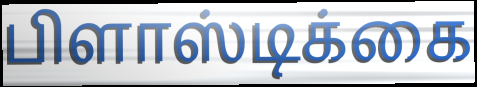
பிளாஸ்டிக்கை